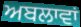
ਅਬਲਾਵਾਂ